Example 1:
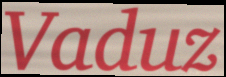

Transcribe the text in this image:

Vaduz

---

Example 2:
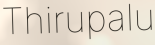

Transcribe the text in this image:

Thirupalu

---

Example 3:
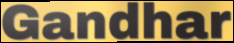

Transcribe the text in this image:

Gandhar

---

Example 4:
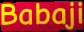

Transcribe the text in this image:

Babaji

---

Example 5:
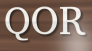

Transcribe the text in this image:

QOR